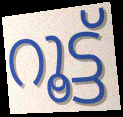
റൂട്ട്